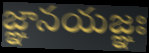
జ్ఞానయజ్ఞః